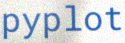
pyplot